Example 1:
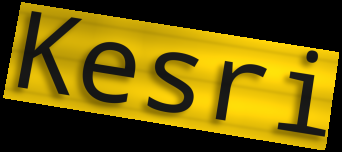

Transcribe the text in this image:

Kesri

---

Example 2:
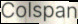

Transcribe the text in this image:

Colspan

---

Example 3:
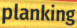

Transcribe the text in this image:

planking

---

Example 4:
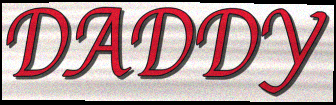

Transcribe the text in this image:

DADDY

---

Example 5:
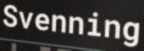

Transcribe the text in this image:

Svenning